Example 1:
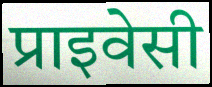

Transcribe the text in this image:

प्राइवेसी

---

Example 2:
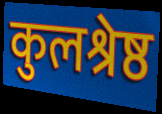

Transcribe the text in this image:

कुलश्रेष्ठ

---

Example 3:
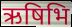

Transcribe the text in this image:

ऋषिभि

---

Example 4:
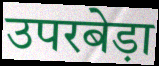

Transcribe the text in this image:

उपरबेड़ा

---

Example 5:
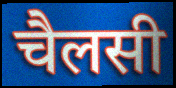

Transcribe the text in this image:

चैलसी